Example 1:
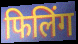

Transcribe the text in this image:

फिलिंग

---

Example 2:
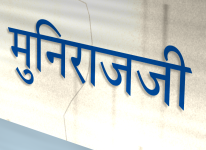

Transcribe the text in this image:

मुनिराजजी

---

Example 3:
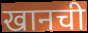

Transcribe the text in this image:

खानची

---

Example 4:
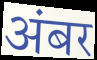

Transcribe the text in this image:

अंबर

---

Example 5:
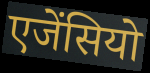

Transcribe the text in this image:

एजेंसियो